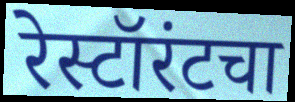
रेस्टॉरंटचा